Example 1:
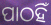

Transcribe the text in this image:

ପାଠହିଁ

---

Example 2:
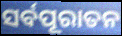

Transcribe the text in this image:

ସର୍ବପୂରାତନ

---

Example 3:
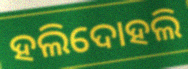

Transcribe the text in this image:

ହଲିଦୋହଲି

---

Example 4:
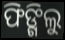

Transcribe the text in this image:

ଫିଙ୍ଗିଲୁ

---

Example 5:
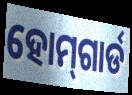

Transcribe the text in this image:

ହୋମ୍‌ଗାର୍ଡ